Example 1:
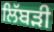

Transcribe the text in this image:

ਲਿੱਬੜੀ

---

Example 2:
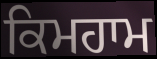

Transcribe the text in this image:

ਕਿਮਹਾਮ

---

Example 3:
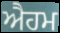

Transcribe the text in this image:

ਐਹਮ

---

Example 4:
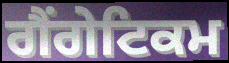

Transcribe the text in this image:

ਗੈਂਗੇਟਿਕਮ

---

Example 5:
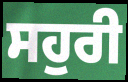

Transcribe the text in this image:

ਸਹੁਰੀ